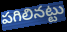
పగిలినట్టు